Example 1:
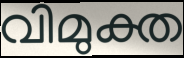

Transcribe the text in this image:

വിമുക്ത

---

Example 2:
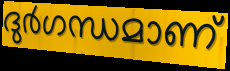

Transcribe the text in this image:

ദുർഗന്ധമാണ്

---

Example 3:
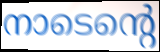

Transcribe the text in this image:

നാടെന്റെ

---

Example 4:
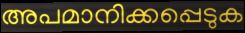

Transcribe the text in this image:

അപമാനിക്കപ്പെടുക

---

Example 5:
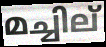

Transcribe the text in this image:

മച്ചില്